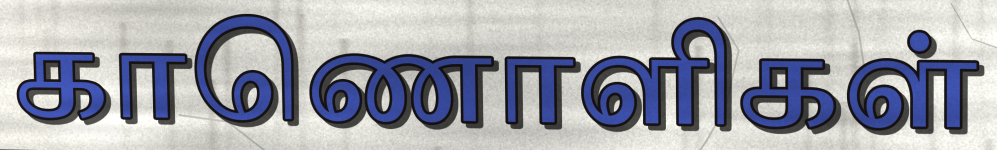
காணொளிகள்